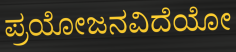
ಪ್ರಯೋಜನವಿದೆಯೋ